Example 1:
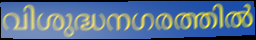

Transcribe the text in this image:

വിശുദ്ധനഗരത്തിൽ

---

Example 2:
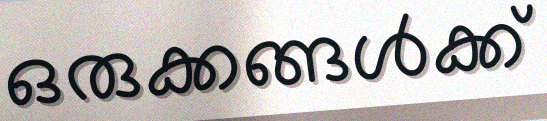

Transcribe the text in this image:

ഒരുക്കങ്ങൾക്ക്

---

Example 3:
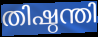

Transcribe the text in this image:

തിഷ്ഠന്തി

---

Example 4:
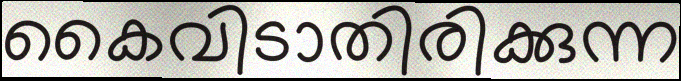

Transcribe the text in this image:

കൈവിടാതിരിക്കുന്ന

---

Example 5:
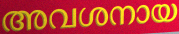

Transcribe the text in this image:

അവശനായ